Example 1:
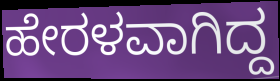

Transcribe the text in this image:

ಹೇರಳವಾಗಿದ್ದ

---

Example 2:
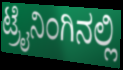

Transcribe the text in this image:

ಟ್ರೈನಿಂಗಿನಲ್ಲಿ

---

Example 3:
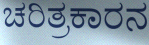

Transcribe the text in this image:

ಚರಿತ್ರಕಾರನ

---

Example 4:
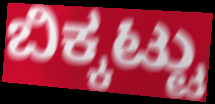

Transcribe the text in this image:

ಬಿಕ್ಕಟ್ಟು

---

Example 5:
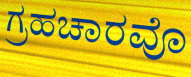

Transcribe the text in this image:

ಗ್ರಹಚಾರವೊ